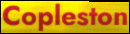
Copleston